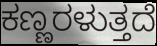
ಕಣ್ಣರಳುತ್ತದೆ